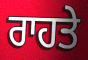
ਰਾਹਤੇ